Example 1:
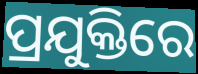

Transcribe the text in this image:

ପ୍ରଯୁକ୍ତିରେ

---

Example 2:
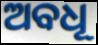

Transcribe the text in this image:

ଅବଧୂ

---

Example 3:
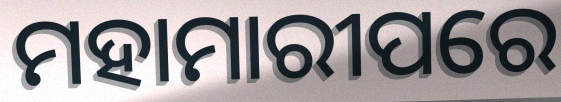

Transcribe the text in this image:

ମହାମାରୀପରେ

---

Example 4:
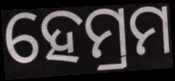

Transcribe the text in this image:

ହେମ୍ରମ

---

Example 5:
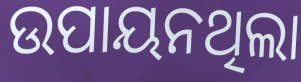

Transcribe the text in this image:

ଉପାୟନଥିଲା